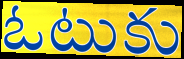
ఓటుకు